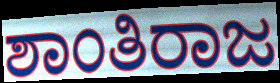
ಶಾಂತಿರಾಜ